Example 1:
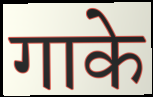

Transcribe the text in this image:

गाके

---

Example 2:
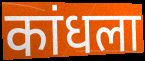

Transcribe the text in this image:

कांधला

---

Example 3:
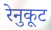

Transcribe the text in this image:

रेनुकूट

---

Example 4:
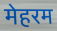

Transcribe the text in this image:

मेहरम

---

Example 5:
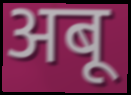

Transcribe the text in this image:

अबू